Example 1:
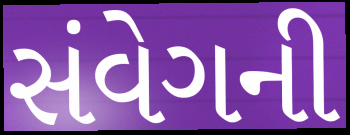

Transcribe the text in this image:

સંવેગની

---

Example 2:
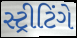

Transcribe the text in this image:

સ્ટ્રીટિંગે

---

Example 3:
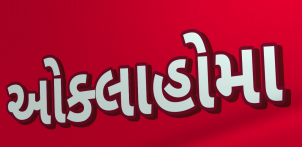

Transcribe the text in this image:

ઓક્લાહોમા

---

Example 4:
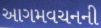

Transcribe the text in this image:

આગમવચનની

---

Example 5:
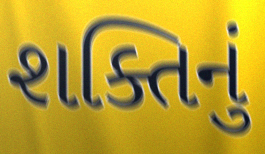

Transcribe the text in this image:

શક્તિનું